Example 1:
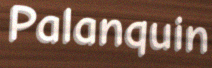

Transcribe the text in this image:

Palanquin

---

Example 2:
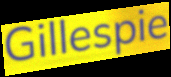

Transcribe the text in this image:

Gillespie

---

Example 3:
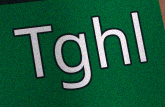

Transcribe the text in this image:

Tghl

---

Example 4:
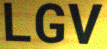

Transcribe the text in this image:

LGV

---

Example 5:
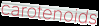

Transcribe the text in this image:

carotenoids